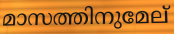
മാസത്തിനുമേല്